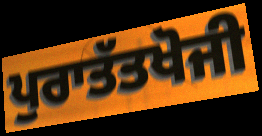
ਪੁਰਾਤੱਤਖੋਜੀ